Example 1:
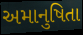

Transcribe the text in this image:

અમાનુષિતા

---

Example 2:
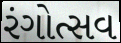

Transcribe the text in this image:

રંગોત્સવ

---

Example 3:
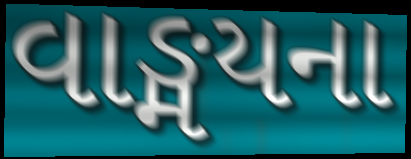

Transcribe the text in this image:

વાઙ્મયના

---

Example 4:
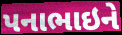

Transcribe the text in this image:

પનાભાઇને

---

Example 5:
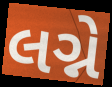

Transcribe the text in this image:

લગ્ને